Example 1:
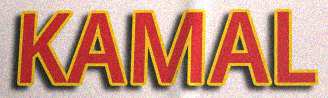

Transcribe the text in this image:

KAMAL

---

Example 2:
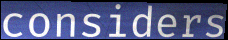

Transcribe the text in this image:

considers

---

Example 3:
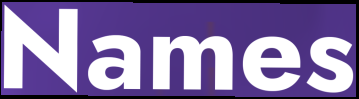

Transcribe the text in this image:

Names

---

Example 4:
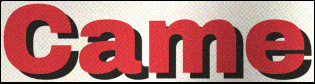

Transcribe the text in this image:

Came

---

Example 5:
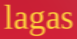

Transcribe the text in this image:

lagas